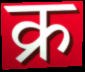
क्र